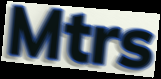
Mtrs